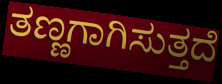
ತಣ್ಣಗಾಗಿಸುತ್ತದೆ